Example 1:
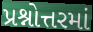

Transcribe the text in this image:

પ્રશ્નોત્તરમાં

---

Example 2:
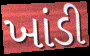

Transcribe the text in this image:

ખાંડી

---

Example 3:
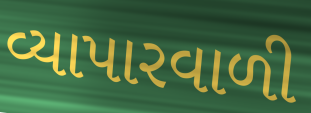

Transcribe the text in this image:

વ્યાપારવાળી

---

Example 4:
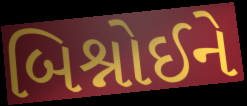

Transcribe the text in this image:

બિશ્નોઈને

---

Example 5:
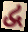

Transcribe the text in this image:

દ્વ